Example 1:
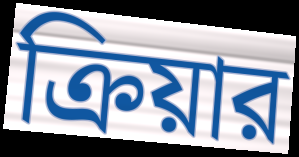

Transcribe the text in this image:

ক্রিয়ার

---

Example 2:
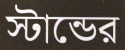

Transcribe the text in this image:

স্টান্ডের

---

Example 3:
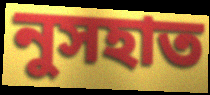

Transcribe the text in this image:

নুসহাত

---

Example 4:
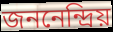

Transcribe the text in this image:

জননেন্দ্রিয়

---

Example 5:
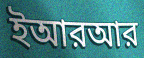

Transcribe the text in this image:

ইআরআর